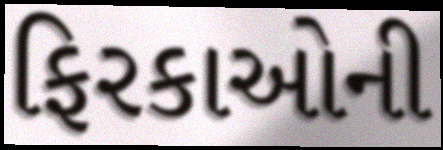
ફિરકાઓની